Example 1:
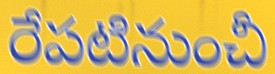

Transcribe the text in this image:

రేపటినుంచీ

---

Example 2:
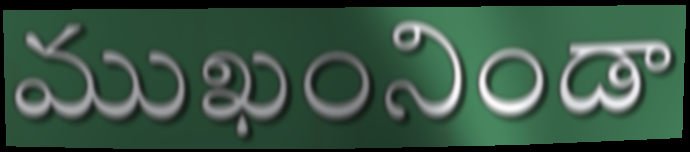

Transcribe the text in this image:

ముఖంనిండా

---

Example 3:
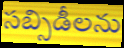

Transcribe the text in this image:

సబ్సిడీలను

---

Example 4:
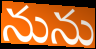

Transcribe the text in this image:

నును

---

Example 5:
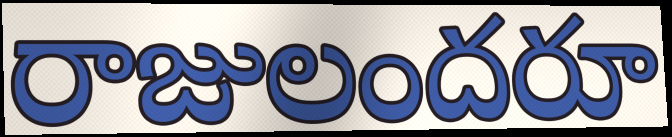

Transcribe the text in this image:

రాజులందరూ